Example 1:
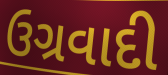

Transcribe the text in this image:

ઉગ્રવાદી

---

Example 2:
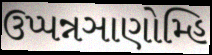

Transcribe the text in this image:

ઉપ્પન્નઞાણોમ્હિ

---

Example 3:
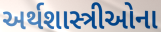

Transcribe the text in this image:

અર્થશાસ્ત્રીઓના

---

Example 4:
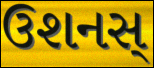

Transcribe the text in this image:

ઉશનસ્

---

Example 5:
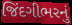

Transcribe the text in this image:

જિંદગીભરનું